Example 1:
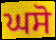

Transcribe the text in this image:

ਘਸੋ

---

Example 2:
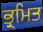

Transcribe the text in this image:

ਭ੍ਰਮਿਤ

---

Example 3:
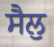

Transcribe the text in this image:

ਸੈਲੁ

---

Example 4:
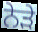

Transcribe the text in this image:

ਨੇਡ਼ੇ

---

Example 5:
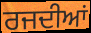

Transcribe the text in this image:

ਰਜਦੀਆਂ